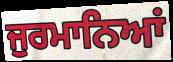
ਜੁਰਮਾਨਿਆਂ